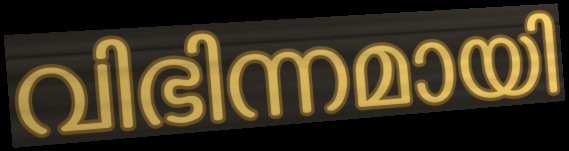
വിഭിന്നമായി